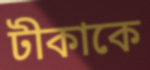
টীকাকে